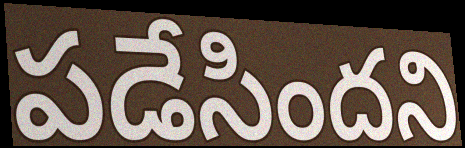
పడేసిందని